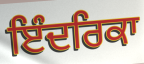
ਇੰਦਰਿਕਾ